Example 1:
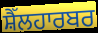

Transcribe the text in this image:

ਸ਼ੈੱਲਹਾਰਬਰ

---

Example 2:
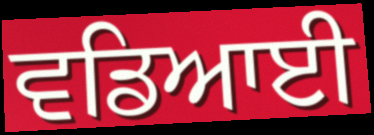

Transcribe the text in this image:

ਵਡਿਆਈ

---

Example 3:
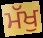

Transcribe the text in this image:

ਮੱਖੁ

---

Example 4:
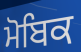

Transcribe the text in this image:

ਮੋਬਿਕ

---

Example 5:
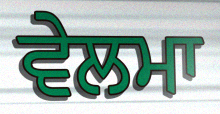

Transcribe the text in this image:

ਵੇਲਮਾ